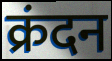
क्रंदन